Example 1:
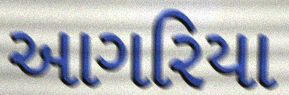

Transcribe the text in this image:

આગરિયા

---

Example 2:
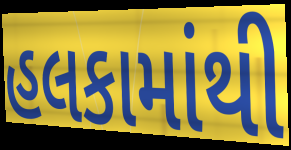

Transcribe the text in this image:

હલકામાંથી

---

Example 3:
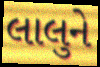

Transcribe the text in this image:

લાલુને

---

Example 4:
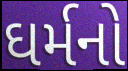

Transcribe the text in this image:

ઘર્મનો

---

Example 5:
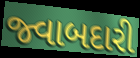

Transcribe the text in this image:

જ્વાબદારી